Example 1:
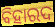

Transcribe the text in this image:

ବିହାରଦ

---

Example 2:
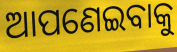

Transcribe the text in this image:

ଆପଣେଇବାକୁ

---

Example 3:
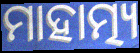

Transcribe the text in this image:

ମାହାତ୍ମ୍ୟ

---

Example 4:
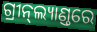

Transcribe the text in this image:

ଗ୍ରୀନ୍‍ଲ୍ୟାଣ୍ଡରେ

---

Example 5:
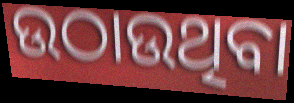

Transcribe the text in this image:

ଉଠାଉଥିବା